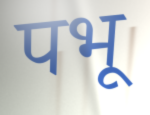
पभू